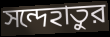
সন্দেহাতুর